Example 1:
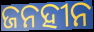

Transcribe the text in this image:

ଜନହୀନ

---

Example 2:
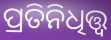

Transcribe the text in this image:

ପ୍ରତିନିଧିତ୍ତ୍ୱ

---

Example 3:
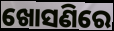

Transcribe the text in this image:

ଖୋସଣିରେ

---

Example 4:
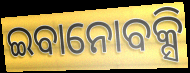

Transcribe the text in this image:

ଇବାନୋବକ୍ସି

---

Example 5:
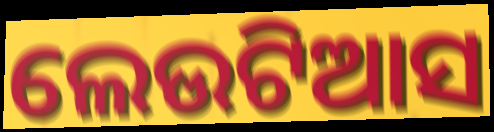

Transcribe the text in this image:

ଲେଉଟିଆସ